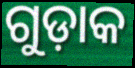
ଗୁଡ଼ାକ